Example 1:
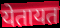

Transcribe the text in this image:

येतायत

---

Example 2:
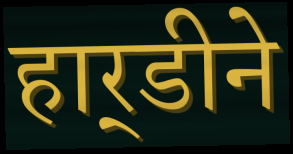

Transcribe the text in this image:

हार्डीने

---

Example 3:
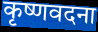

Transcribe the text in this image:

कृष्णवदना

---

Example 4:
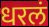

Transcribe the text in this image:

धरलं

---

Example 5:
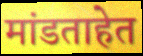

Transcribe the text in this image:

मांडताहेत